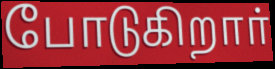
போடுகிறார்